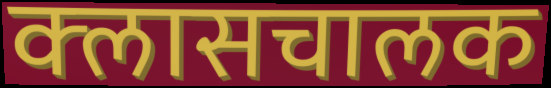
क्‍लासचालक